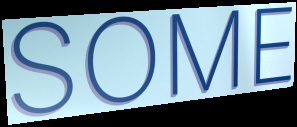
SOME